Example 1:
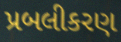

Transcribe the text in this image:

પ્રબલીકરણ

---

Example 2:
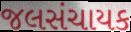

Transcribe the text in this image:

જલસંચાયક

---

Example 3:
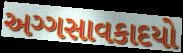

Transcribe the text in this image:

અગ્ગસાવકાદયો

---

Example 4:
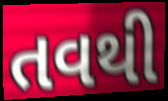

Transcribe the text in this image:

તવથી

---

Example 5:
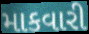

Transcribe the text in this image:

માકવારી